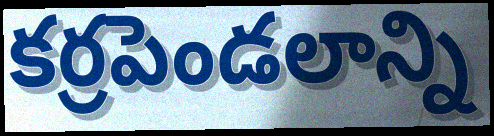
కర్రపెండలాన్ని